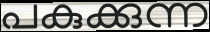
പകുക്കുന്ന